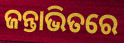
ଜନ୍ତାଭିତରେ